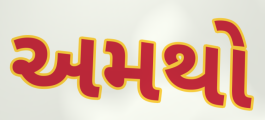
અમથો